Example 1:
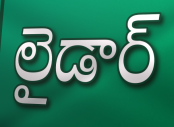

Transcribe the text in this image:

లైడార్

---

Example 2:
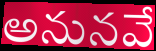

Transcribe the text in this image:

అనునవే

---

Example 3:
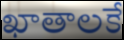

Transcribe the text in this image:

ఖాతాలకే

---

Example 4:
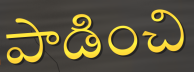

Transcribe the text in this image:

పాడించి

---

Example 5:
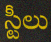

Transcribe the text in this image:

స్టీలు